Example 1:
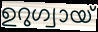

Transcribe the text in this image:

ഉറുഗ്വായ്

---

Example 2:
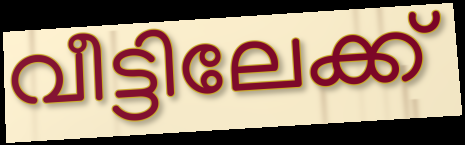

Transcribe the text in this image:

വീട്ടിലേക്ക്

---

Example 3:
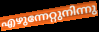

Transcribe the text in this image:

എഴുന്നേറ്റുനിന്നു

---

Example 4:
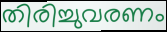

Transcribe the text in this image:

തിരിച്ചുവരണം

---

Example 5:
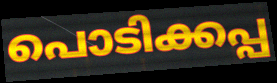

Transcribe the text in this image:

പൊടിക്കപ്പ